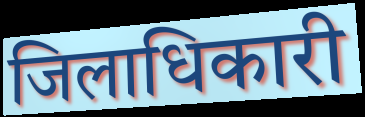
जिलाधिकारी